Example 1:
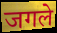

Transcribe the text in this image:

जगले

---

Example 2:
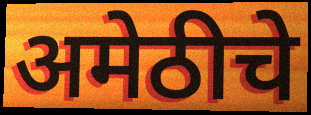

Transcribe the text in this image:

अमेठीचे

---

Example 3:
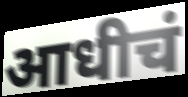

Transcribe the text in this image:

आधीचं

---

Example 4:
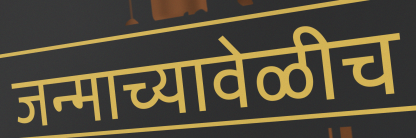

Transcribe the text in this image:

जन्माच्यावेळीच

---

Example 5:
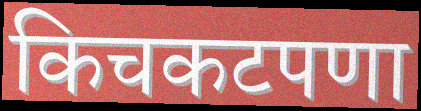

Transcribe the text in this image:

किचकटपणा